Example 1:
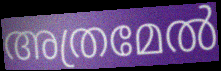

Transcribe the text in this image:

അത്രമേൽ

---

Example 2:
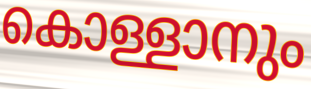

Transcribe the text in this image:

കൊള്ളാനും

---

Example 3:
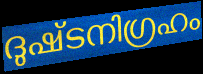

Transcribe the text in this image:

ദുഷ്‌ടനിഗ്രഹം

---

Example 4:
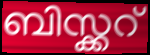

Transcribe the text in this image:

ബിസ്ക്കറ്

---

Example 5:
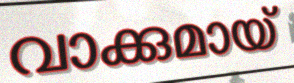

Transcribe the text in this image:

വാക്കുമായ്